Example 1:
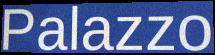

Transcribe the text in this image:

Palazzo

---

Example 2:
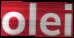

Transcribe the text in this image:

olei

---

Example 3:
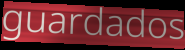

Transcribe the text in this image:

guardados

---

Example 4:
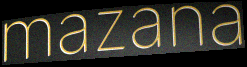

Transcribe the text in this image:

mazana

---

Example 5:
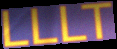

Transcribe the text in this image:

LLLT